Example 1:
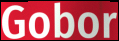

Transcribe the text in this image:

Gobor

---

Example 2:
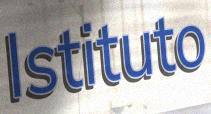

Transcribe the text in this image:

Istituto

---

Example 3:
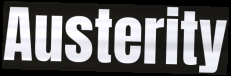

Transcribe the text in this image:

Austerity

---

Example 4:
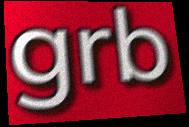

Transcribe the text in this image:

grb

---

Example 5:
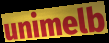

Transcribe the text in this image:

unimelb